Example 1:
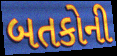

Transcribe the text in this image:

બતકોની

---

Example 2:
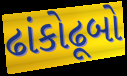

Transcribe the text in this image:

ઢાંકોઢૂબો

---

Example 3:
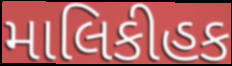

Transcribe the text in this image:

માલિકીહક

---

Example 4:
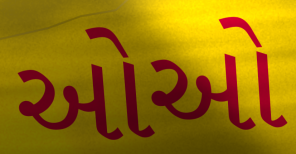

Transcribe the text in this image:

ઓઓ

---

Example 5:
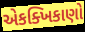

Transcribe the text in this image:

એકક્ખિકાણો